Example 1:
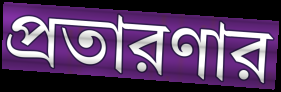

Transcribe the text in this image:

প্রতারণার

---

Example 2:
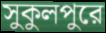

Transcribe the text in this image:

সুকুলপুরে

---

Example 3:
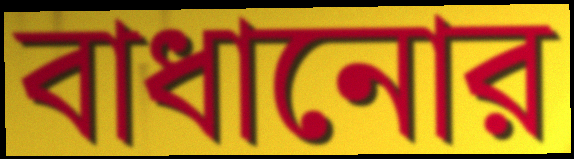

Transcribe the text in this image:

বাধানোর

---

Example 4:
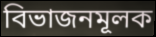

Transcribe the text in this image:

বিভাজনমূলক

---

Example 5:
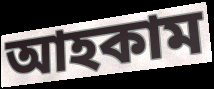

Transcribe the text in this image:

আহকাম